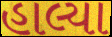
હાલ્યા